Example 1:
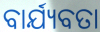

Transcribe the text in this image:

ବାର୍ଯ୍ୟବତା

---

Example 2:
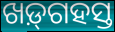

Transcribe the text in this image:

ଖଡ଼୍‌ଗହସ୍ତ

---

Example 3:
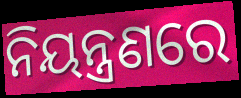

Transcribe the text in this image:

ନିୟନ୍ତ୍ରଣରେ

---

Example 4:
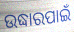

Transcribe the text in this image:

ଉଦ୍ଧାରପାଇଁ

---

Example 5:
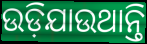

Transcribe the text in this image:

ଉଡ଼ିଯାଉଥାନ୍ତି